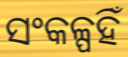
ସଂକଳ୍ପହିଁ